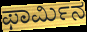
ಫಾರ್ಮಿನ